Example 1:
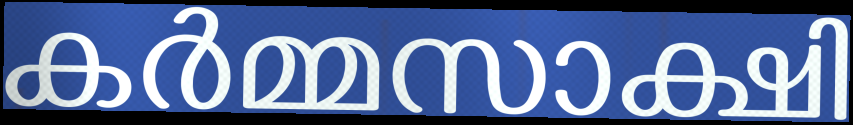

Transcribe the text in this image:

കർമ്മസാക്ഷി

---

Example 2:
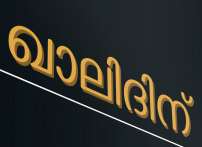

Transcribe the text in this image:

ഖാലിദിന്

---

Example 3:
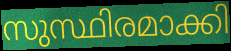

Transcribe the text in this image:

സുസ്ഥിരമാക്കി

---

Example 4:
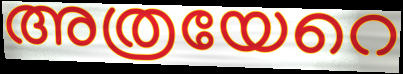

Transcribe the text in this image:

അത്രയേറെ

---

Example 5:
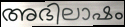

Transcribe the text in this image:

അഭിലാഷം